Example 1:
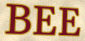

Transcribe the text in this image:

BEE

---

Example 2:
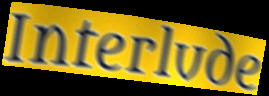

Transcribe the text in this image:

Interlude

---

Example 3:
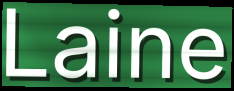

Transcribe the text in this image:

Laine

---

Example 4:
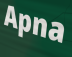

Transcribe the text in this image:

Apna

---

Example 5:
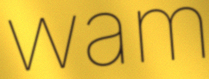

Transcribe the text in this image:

wam